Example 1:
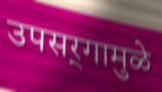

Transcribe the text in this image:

उपसर्गामुळे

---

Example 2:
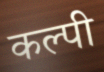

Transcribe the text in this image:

कल्पी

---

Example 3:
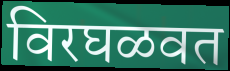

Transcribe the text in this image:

विरघळवत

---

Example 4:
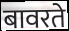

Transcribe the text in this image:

बावरते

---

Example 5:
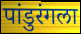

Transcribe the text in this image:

पांडुरंगला